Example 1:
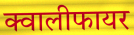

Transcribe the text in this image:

क्वालीफायर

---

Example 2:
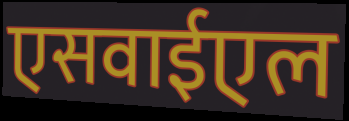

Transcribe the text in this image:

एसवाईएल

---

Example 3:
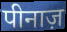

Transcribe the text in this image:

पीनाज़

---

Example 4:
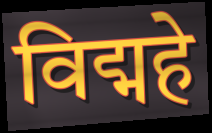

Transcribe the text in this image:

विद्महे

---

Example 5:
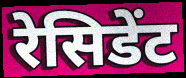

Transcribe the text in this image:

रेसिडेंट